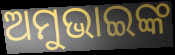
ଅମୁଭାଇଙ୍କ